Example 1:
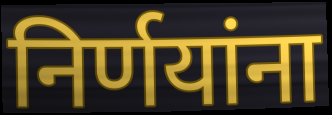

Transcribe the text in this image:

निर्णयांना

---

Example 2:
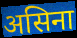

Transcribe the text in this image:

असिना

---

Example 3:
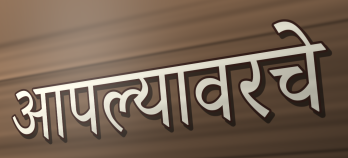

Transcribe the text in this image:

आपल्यावरचे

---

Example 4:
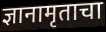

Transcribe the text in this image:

ज्ञानामृताचा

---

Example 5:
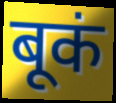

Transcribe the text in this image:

बूकं